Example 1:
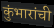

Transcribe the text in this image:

कुंभारांची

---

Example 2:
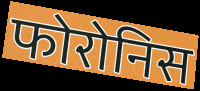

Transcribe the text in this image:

फोरोनिस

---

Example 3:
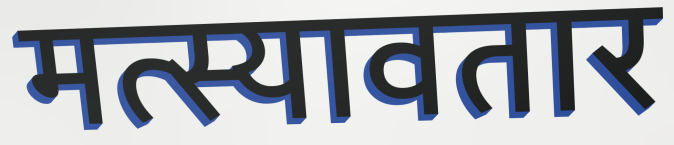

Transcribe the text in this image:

मत्स्यावतार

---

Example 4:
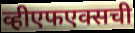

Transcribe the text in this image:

व्हीएफएक्सची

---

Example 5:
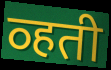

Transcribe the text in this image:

व्हती